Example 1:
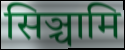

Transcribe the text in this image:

सिञ्चामि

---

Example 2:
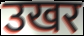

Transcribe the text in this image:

उखर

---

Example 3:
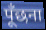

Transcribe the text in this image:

पूँछना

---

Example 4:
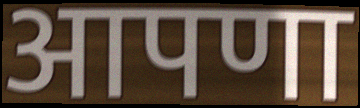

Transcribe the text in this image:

आपणा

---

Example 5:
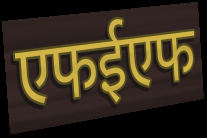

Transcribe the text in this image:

एफईएफ